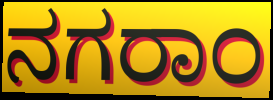
ನಗರಾಂ